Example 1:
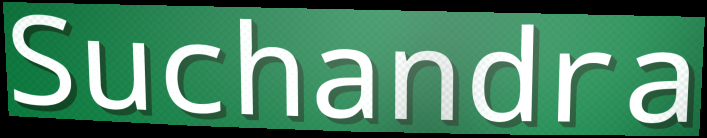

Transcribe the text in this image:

Suchandra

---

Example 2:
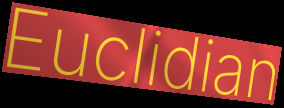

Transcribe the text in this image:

Euclidian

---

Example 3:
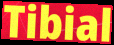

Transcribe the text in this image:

Tibial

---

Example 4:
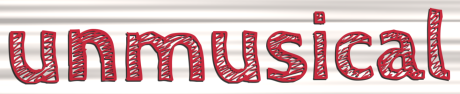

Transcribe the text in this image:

unmusical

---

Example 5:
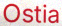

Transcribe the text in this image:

Ostia